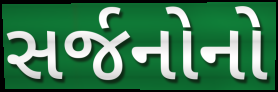
સર્જનોનો